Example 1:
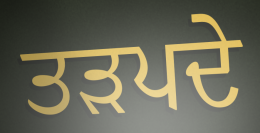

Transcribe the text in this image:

ਤੜਪਦੇ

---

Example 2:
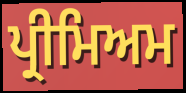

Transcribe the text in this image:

ਪ੍ਰੀਮਿਅਮ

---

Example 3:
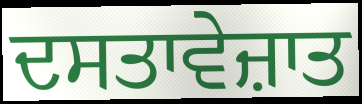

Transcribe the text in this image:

ਦਸਤਾਵੇਜ਼ਾਤ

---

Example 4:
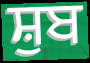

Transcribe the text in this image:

ਸ਼ੁਬ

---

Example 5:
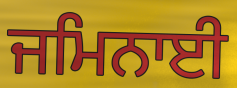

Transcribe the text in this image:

ਜਮਿਨਾਈ